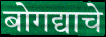
बोगद्याचे